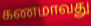
கணமாவது